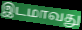
இடமாவது